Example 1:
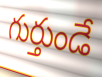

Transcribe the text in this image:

గుర్తుండే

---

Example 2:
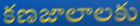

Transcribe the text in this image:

కణజాలాలకు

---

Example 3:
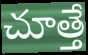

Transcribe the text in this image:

చూత్తే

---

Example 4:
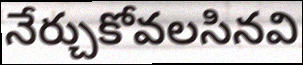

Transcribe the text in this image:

నేర్చుకోవలసినవి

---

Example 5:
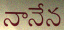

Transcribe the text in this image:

నానేన